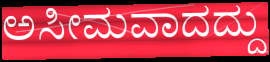
ಅಸೀಮವಾದದ್ದು